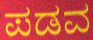
ಪಡವ